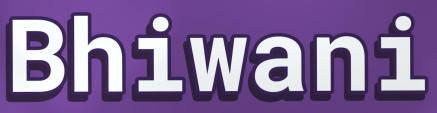
Bhiwani